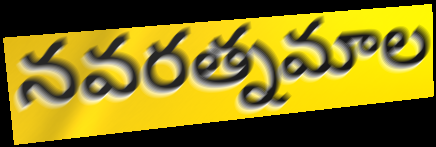
నవరత్నమాల